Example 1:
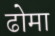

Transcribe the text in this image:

ढोमा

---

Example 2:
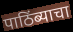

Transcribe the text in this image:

पाठिंब्याचा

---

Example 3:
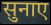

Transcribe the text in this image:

सुनाए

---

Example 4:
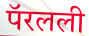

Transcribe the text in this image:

पॅरलली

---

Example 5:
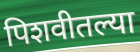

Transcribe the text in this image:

पिशवीतल्या